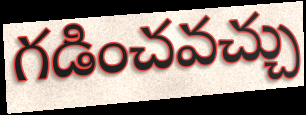
గడించవచ్చు